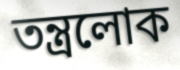
তন্ত্রলোক